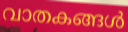
വാതകങ്ങൾ